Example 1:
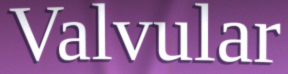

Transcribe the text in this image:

Valvular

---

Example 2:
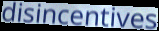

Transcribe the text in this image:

disincentives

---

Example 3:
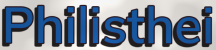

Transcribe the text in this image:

Philisthei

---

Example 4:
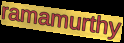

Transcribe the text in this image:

ramamurthy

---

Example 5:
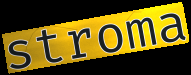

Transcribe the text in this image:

stroma